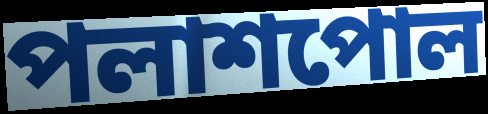
পলাশপোল